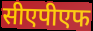
सीएपीएफ